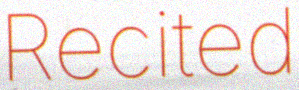
Recited